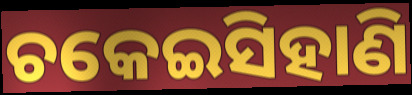
ଚକେଇସିହାଣି